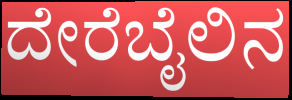
ದೇರೆಬೈಲಿನ